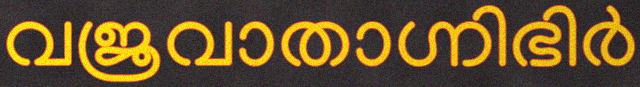
വജ്രവാതാഗ്നിഭിർ